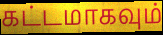
கட்டமாகவும்